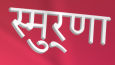
स्मुर्णा